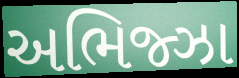
અભિજ્ઝા